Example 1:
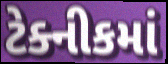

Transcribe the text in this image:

ટેક્નીકમાં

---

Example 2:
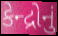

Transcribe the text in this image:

કેન્દ્રોનું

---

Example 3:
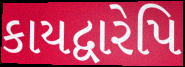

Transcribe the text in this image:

કાયદ્વારેપિ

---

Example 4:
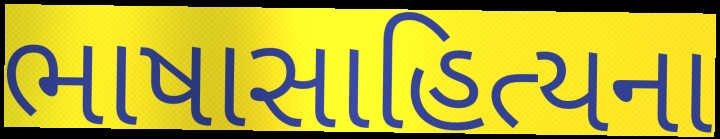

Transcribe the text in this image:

ભાષાસાહિત્યના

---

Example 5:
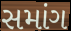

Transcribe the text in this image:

સમાંગ